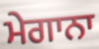
ਮੇਗਾਨਾ